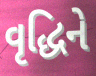
વૃદ્ધિને